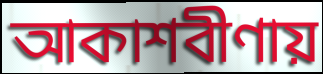
আকাশবীণায়